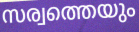
സര്വത്തെയും